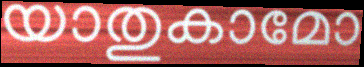
യാതുകാമോ